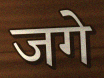
जगे